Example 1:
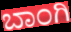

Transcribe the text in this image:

ಬಾಂಗಿ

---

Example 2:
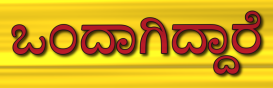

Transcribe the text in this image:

ಒಂದಾಗಿದ್ದಾರೆ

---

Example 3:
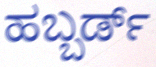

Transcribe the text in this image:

ಹಬ್ಬರ್ಡ್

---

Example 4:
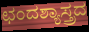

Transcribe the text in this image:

ಛಂದಶ್ಯಾಸ್ತ್ರದ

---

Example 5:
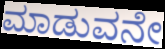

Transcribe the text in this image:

ಮಾಡುವನೇ